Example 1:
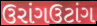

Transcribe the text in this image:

ઉરાંગઉટાંગ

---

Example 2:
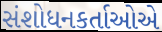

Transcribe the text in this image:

સંશોધનકર્તાઓએ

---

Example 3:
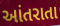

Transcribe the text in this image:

આંતરાતા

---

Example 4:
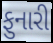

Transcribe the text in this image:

ફુનારી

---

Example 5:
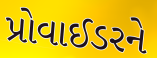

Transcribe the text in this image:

પ્રોવાઈડરને